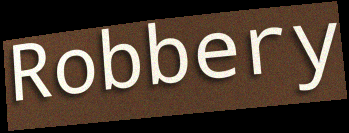
Robbery